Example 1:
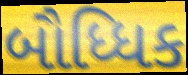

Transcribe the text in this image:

બૌધ્ધિક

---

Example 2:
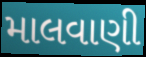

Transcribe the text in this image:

માલવાણી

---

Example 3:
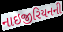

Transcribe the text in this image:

નાઇજીરિયનની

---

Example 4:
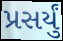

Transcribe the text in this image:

પ્રસર્યું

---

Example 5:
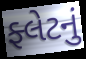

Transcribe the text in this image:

ફ્લેટનું